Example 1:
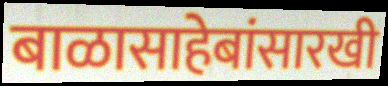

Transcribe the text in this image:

बाळासाहेबांसारखी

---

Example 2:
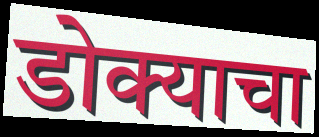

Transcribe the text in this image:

डोक्याचा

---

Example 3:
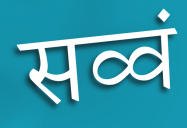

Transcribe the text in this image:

सव्वं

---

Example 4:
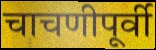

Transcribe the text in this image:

चाचणीपूर्वी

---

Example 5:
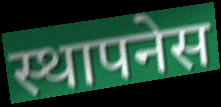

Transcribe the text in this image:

स्थापनेस